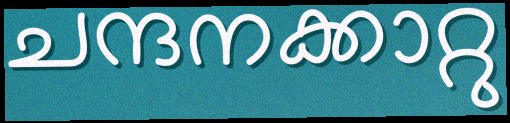
ചന്ദനക്കാറ്റു